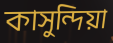
কাসুন্দিয়া